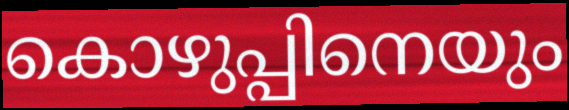
കൊഴുപ്പിനെയും